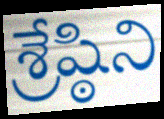
శ్రేష్ఠిని